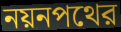
নয়নপথের